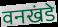
वनखंडे